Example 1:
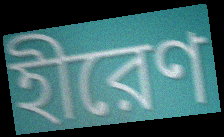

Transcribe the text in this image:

হীরেণ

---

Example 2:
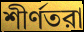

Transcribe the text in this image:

শীর্ণতরা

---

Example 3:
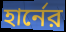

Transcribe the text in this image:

হার্নের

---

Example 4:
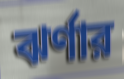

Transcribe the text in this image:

ঝর্ণার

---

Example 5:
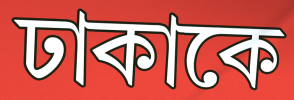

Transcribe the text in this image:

ঢাকাকে